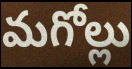
మగోల్లు